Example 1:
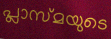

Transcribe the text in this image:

പ്ലാസ്മയുടെ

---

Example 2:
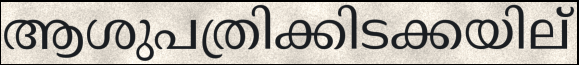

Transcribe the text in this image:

ആശുപത്രിക്കിടക്കയില്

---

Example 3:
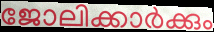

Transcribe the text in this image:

ജോലിക്കാർക്കും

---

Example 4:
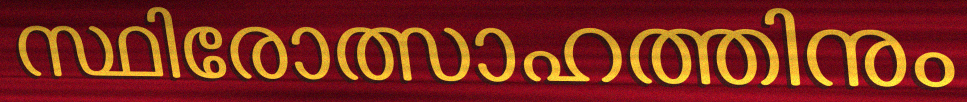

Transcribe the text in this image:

സ്ഥിരോത്സാഹത്തിനും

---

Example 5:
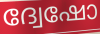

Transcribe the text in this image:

ദ്വേഷോ